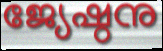
ജ്യേഷ്ഠനു